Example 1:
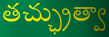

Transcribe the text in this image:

తచ్ఛ్రుత్వా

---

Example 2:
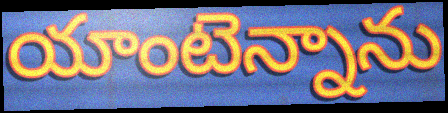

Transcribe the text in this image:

యాంటెన్నాను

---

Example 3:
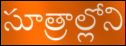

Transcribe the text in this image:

సూత్రాల్లోని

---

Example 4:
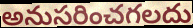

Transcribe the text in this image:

అనుసరించగలదు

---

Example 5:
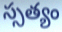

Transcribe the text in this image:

స్సత్యం